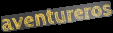
aventureros